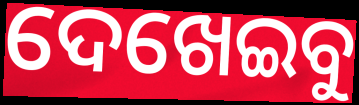
ଦେଖେଇବୁ